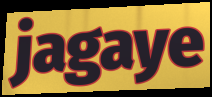
jagaye